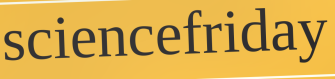
sciencefriday